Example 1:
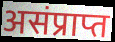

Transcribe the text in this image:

असंप्राप्त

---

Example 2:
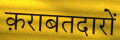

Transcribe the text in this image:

क़राबतदारों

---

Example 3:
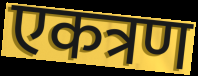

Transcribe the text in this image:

एकत्रण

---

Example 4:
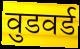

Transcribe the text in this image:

वुडवर्ड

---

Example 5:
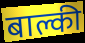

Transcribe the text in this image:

बाल्‍की